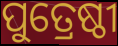
ପୁତ୍ରେଷ୍ଠୀ